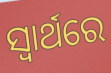
ସ୍ଵାର୍ଥରେ